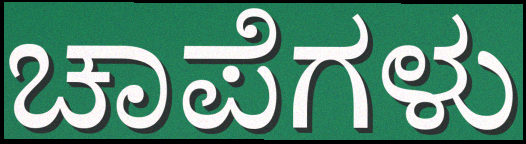
ಚಾಪೆಗಳು